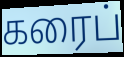
கரைப்